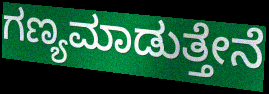
ಗಣ್ಯಮಾಡುತ್ತೇನೆ